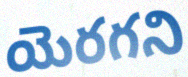
యెరగని